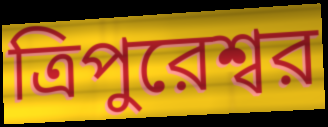
ত্রিপুরেশ্বর